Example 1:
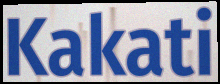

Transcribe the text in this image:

Kakati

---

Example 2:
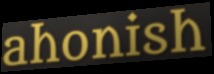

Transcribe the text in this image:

ahonish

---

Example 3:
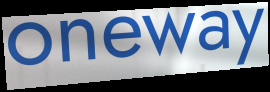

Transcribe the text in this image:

oneway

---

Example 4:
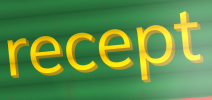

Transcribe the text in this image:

recept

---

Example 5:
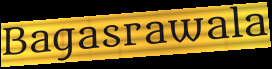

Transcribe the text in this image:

Bagasrawala